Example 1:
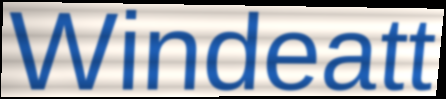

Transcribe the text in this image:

Windeatt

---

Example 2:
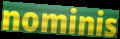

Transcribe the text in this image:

nominis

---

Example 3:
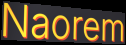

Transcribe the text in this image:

Naorem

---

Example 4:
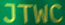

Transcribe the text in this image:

JTWC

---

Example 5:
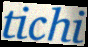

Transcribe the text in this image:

tichi